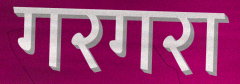
गरगरा